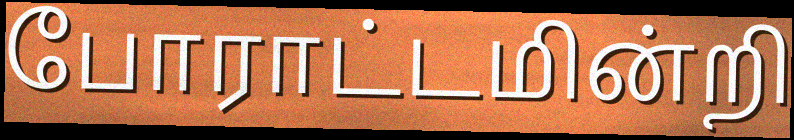
போராட்டமின்றி